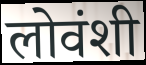
लोवंशी